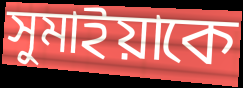
সুমাইয়াকে